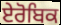
ਏਰੋਬਿਕ